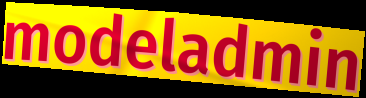
modeladmin